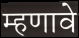
म्हणावे